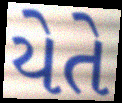
યેતે